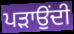
ਪੜਾਉਂਦੀ